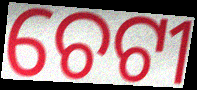
ଚେଟୀ